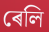
ৰেলি